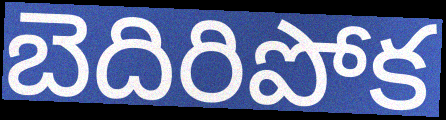
బెదిరిపోక